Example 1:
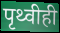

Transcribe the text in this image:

पृथ्वीही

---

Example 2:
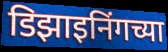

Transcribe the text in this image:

डिझाइनिंगच्या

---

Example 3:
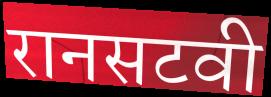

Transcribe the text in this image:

रानसटवी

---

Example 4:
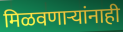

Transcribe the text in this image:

मिळवणाऱ्यांनाही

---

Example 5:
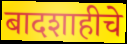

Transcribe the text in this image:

बादशाहीचे